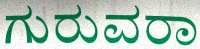
ಗುರುವರಾ